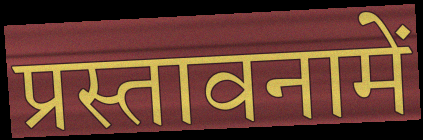
प्रस्तावनामें